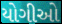
યોગીઓ